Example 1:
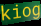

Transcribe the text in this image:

kiog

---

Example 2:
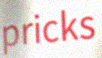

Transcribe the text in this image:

pricks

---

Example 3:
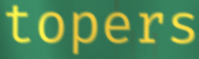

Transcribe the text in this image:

topers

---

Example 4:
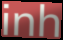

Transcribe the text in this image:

inh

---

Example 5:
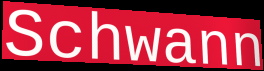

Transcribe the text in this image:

Schwann